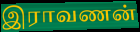
இராவணன்